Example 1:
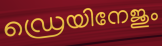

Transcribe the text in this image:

ഡ്രെയിനേജും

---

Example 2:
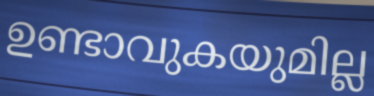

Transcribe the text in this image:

ഉണ്ടാവുകയുമില്ല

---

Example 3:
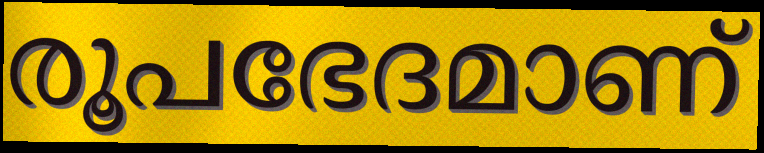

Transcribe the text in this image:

രൂപഭേദമാണ്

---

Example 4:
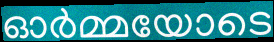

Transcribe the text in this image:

ഓർമ്മയോടെ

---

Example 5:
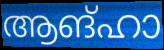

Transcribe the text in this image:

ആങ്ഹാ